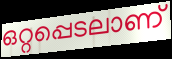
ഒറ്റപ്പെടലാണ്